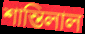
শান্তিলাল